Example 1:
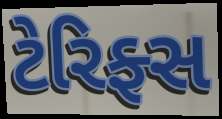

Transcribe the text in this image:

ટેરિફ્સ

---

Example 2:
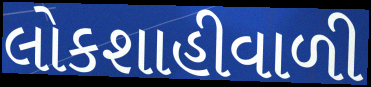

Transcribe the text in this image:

લોકશાહીવાળી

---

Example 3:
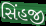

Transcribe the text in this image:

સિંહજી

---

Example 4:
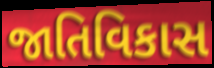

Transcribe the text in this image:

જાતિવિકાસ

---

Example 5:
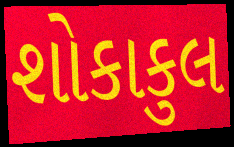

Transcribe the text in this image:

શોકાકુલ